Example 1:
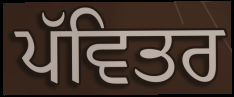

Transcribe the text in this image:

ਪੱਵਿਤਰ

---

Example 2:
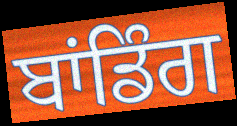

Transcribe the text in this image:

ਬਾਂਡਿੰਗ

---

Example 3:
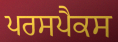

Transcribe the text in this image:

ਪਰਸਪੈਕਸ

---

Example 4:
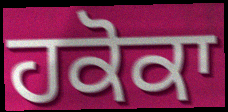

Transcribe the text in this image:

ਹਕੋਕਾ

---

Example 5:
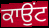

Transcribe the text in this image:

ਕਾਉਂਟ